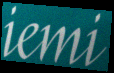
iemi